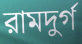
রামদুর্গ